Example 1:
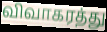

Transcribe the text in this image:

விவாகரத்து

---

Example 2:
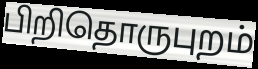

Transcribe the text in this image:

பிறிதொருபுறம்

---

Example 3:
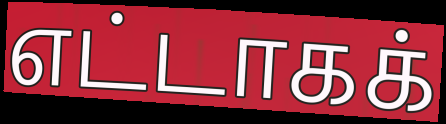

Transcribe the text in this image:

எட்டாகக்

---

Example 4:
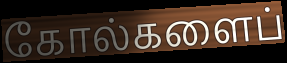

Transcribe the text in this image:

கோல்களைப்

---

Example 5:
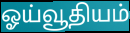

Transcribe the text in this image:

ஓய்வூதியம்